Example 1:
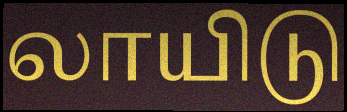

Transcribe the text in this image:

லாயிடு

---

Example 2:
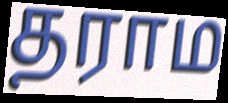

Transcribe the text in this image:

தராம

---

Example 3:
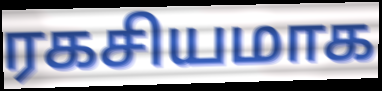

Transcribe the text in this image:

ரகசியமாக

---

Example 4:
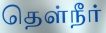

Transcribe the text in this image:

தெள்நீர்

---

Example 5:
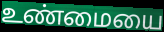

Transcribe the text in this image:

உண்மையை